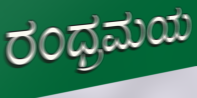
ರಂಧ್ರಮಯ